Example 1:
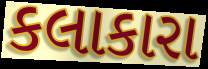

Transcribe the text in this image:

કલાકારા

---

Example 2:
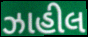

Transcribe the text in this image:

ઝાહીલ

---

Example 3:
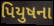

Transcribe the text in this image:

પિયુષના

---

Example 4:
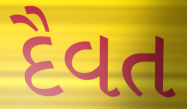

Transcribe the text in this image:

દૈવત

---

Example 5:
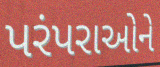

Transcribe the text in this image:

પરંપરાઓને